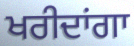
ਖਰੀਦਾਂਗਾ